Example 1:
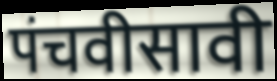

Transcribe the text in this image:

पंचवीसावी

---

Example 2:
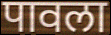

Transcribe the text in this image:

पावला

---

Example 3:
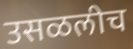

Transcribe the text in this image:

उसळलीच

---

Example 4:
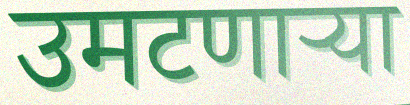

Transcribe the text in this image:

उमटणाऱ्या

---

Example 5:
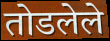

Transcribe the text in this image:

तोडलेले